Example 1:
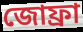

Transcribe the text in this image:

জোফ্রা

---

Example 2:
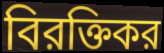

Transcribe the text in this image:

বিরক্তিকর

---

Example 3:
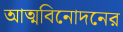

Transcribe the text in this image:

আত্মবিনোদনের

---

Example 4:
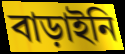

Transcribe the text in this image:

বাড়াইনি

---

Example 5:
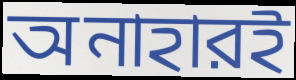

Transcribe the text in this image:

অনাহারই